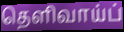
தெளிவாய்ப்